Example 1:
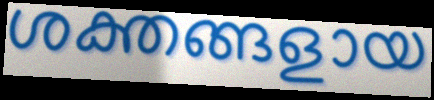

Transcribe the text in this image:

ശക്തങ്ങളായ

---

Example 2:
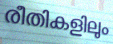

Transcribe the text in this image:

രീതികളിലും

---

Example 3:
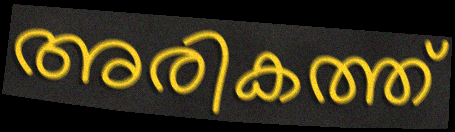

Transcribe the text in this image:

അരികത്ത്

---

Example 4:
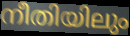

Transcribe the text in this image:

നീതിയിലും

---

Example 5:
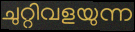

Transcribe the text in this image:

ചുറ്റിവളയുന്ന